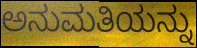
ಅನುಮತಿಯನ್ನು